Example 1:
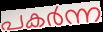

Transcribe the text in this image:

പകർന്ന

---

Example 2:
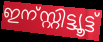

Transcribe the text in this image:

ഇന്സ്റ്റിട്ട്യൂട്ട്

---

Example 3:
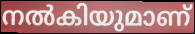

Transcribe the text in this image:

നൽകിയുമാണ്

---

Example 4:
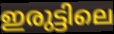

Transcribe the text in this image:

ഇരുട്ടിലെ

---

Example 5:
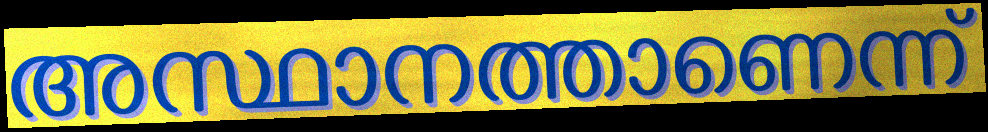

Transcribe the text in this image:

അസ്ഥാനത്താണെന്ന്